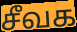
சீவக